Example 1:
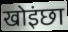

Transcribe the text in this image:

खोइंछा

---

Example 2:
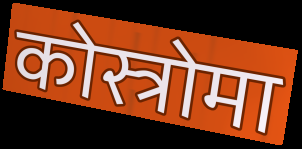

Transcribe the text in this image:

कोस्त्रोमा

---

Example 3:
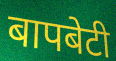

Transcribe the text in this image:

बापबेटी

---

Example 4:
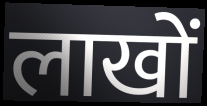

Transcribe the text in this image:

लाखों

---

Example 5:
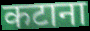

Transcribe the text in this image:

कटाना